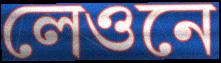
লেওনে